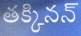
తక్కినన్